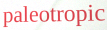
paleotropic